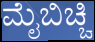
ಮೈಬಿಚ್ಚಿ